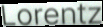
Lorentz